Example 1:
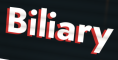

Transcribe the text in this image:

Biliary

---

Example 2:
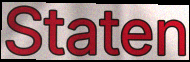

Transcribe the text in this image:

Staten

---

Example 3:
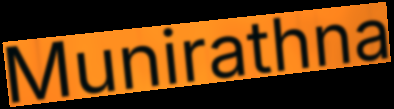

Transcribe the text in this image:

Munirathna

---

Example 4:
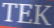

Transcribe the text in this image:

TEK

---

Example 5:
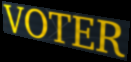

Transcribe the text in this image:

VOTER